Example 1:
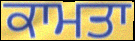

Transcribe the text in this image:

ਕਾਮਤਾ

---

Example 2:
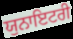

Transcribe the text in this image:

ਯੁਨਾਇਟਰੀ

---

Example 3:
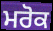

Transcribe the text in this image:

ਮਰੋਕ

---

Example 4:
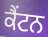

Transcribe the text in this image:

ਕੈਂਟਨ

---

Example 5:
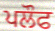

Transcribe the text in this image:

ਪਲੌਫ